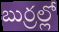
బుర్రల్లో